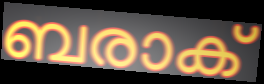
ബരാക്